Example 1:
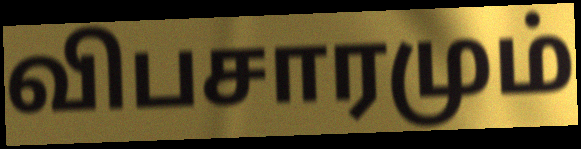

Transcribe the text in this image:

விபசாரமும்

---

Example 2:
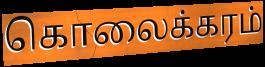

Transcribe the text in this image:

கொலைக்கரம்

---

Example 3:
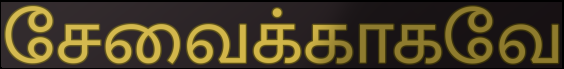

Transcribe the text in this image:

சேவைக்காகவே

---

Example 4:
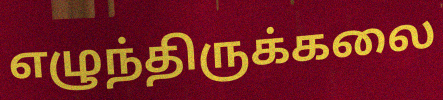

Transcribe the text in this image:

எழுந்திருக்கலை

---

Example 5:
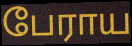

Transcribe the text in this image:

பேராய